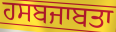
ਹਸਬਜਾਬਤਾ